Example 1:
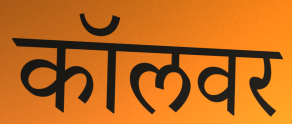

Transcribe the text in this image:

कॉलवर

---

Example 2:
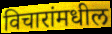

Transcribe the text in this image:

विचारांमधील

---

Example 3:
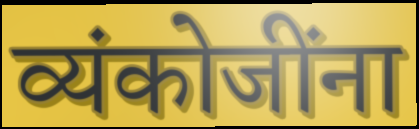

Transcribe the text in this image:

व्यंकोजींना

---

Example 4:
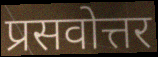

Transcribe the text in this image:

प्रसवोत्तर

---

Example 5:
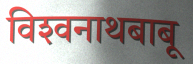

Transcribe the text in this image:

विश्‍वनाथबाबू